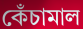
কেঁচামাল